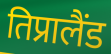
तिप्रालैंड